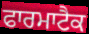
ਫਾਰਮਾਟੈਕ